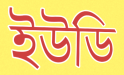
ইউডি